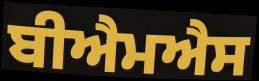
ਬੀਐਮਐਸ